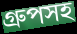
গ্রুপসহ